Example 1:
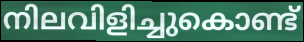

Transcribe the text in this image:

നിലവിളിച്ചുകൊണ്ട്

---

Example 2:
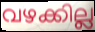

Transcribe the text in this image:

വഴക്കില്ല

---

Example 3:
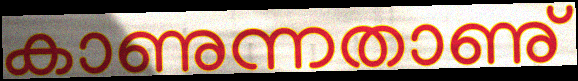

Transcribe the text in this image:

കാണുന്നതാണു്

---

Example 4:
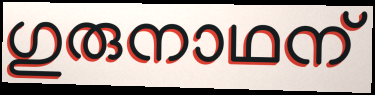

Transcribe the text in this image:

ഗുരുനാഥന്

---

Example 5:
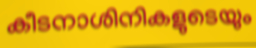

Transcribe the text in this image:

കീടനാശിനികളുടെയും